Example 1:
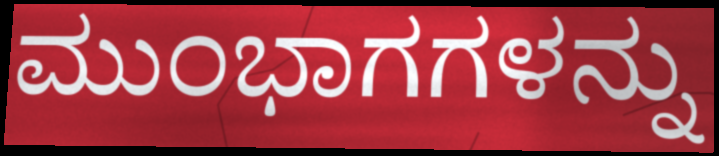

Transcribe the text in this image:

ಮುಂಭಾಗಗಳನ್ನು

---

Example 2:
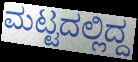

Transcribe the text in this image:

ಮಟ್ಟದಲ್ಲಿದ್ದ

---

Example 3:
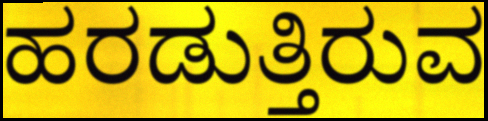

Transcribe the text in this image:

ಹರಡುತ್ತಿರುವ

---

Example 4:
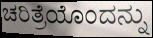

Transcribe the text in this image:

ಚರಿತ್ರೆಯೊಂದನ್ನು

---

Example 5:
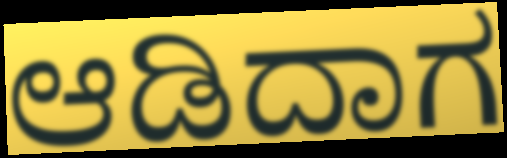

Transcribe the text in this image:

ಆಡಿದಾಗ